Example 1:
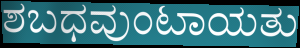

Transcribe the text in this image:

ಶಬಧವುಂಟಾಯತು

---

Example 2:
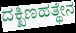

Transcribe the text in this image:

ದಕ್ಖಿಣಹತ್ಥೇನ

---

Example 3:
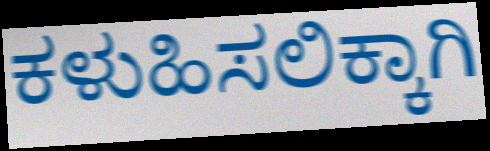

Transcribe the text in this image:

ಕಳುಹಿಸಲಿಕ್ಕಾಗಿ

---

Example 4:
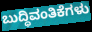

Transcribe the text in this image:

ಬುದ್ಧಿವಂತಿಕೆಗಳು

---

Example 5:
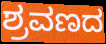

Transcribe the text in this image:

ಶ್ರವಣದ